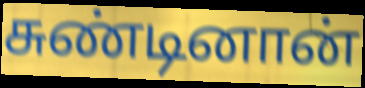
சுண்டினான்